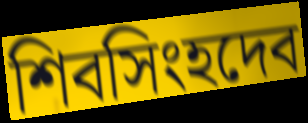
শিবসিংহদেব